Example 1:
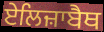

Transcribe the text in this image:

ਏਲਿਜ਼ਾਬੈਥ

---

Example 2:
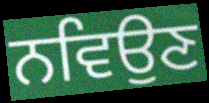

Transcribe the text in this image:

ਨਵਿਉਣ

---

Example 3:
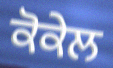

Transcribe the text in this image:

ਕੋਕੇਲ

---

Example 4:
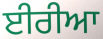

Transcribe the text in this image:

ਈਰੀਆ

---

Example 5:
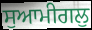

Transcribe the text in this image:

ਸੁਆਮੀਗਲੁ